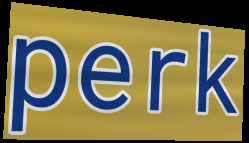
perk